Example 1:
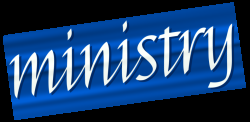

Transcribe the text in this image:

ministry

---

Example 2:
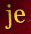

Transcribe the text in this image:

je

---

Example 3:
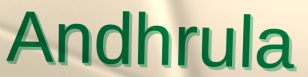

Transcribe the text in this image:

Andhrula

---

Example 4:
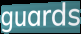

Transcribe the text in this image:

guards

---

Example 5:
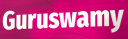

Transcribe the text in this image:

Guruswamy